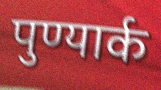
पुण्यार्क